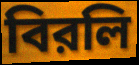
বিরলি